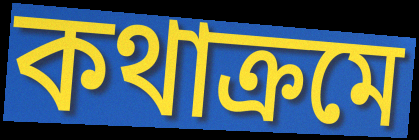
কথাক্রমে